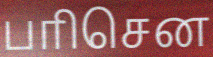
பரிசென